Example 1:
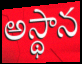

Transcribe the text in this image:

అస్థాన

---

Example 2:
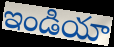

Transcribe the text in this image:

ఇండియా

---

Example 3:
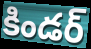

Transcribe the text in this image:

కిండర్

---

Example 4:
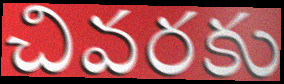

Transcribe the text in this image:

చివరకు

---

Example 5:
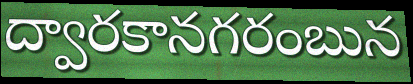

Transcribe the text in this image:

ద్వారకానగరంబున